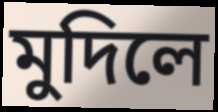
মুদিলে